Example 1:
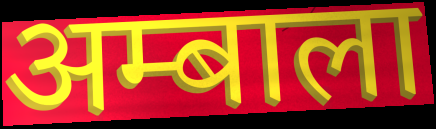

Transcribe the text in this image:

अम्बाला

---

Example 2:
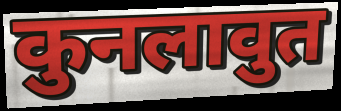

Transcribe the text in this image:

कुनलावुत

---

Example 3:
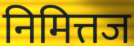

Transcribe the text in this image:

निमित्तज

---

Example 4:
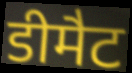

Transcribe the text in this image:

डीमैट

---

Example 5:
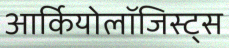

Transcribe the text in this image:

आर्कियोलॉजिस्ट्स